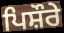
ਪਿਸ਼ੌਰੇ